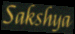
Sakshya